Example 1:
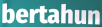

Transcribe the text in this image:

bertahun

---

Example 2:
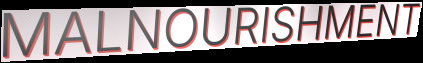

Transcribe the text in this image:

MALNOURISHMENT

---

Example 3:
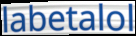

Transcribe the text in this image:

labetalol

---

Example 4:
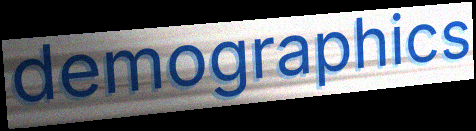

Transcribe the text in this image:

demographics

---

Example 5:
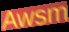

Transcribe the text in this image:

Awsm